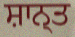
ਸ਼ਾਨ੍ਤ